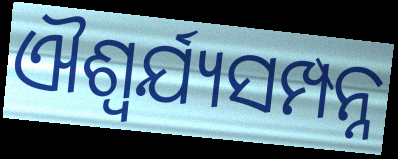
ଐଶ୍ୱର୍ଯ୍ୟସମ୍ପନ୍ନ